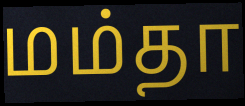
மம்தா